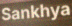
Sankhya